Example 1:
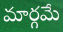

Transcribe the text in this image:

మార్గమే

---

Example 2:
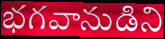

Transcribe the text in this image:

భగవానుడిని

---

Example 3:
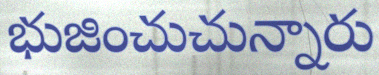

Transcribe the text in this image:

భుజించుచున్నారు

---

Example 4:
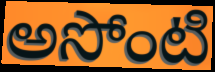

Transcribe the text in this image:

అసోంటి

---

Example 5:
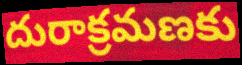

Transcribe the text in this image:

దురాక్రమణకు